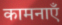
कामनाएँ